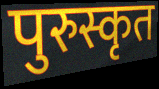
पुरुस्कृत